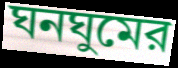
ঘনঘুমের